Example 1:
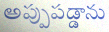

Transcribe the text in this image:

అప్పుపడ్డాను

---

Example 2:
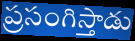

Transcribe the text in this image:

ప్రసంగిస్తాడు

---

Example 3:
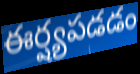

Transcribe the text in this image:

ఈర్ష్యపడడం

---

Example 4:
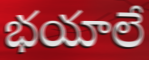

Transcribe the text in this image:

భయాలే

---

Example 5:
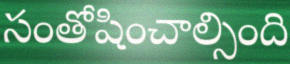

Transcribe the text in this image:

సంతోషించాల్సింది